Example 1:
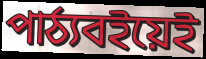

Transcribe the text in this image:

পাঠ্যবইয়েই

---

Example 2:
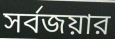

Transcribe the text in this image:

সর্বজয়ার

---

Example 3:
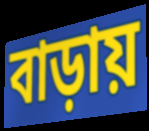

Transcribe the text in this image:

বাড়ায়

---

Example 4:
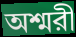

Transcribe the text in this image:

অশ্মরী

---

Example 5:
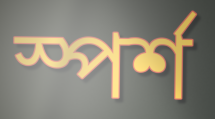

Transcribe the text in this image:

স্পর্শ